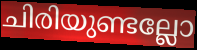
ചിരിയുണ്ടല്ലോ